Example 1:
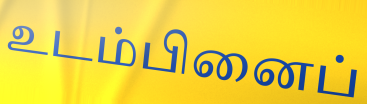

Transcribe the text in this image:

உடம்பினைப்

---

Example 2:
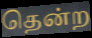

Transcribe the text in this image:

தென்ற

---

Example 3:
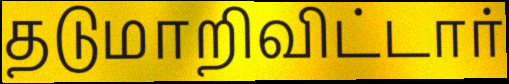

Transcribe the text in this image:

தடுமாறிவிட்டார்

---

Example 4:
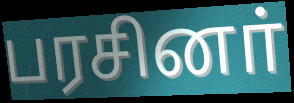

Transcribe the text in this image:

பரசினர்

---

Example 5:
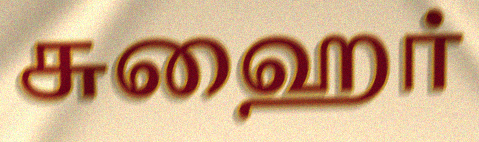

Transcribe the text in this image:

சுஹைர்